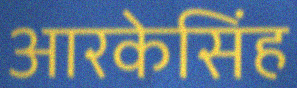
आरकेसिंह